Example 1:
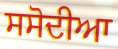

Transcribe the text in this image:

ਸਸੋਦੀਆ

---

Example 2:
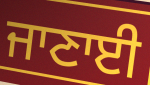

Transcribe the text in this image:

ਜਾਣਾਈ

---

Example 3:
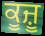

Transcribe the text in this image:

ਕੂਜ਼ੂ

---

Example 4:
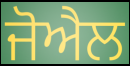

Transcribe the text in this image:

ਜੋਐਲ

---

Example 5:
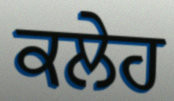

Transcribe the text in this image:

ਕਲੇਹ